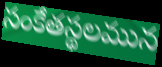
సంకేతస్థలమున